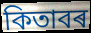
কিতাবৰ